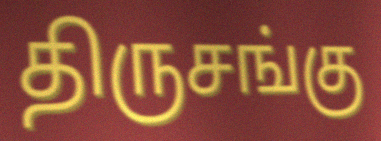
திருசங்கு